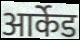
आर्केड